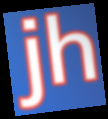
jh